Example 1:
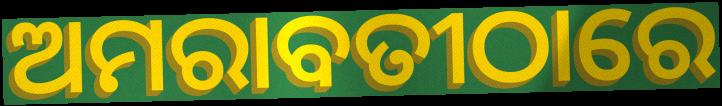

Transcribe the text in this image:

ଅମରାବତୀଠାରେ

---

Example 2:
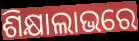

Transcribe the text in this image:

ଶିକ୍ଷାଲାଭରେ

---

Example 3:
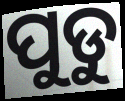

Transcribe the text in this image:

ପୁଡୁ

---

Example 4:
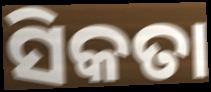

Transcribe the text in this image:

ସିକତା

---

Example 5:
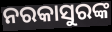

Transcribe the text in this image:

ନରକାସୁରଙ୍କ